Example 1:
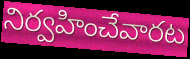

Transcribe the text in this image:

నిర్వహించేవారట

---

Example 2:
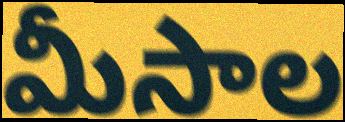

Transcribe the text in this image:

మీసాల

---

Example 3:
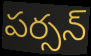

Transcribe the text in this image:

పర్సన్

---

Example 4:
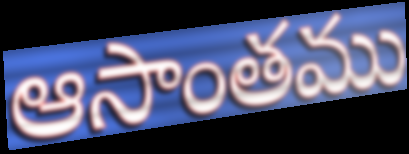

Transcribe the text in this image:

ఆసాంతము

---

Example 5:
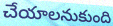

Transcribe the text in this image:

చేయాలనుకుంది